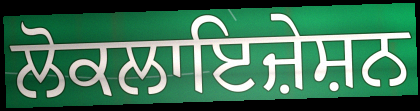
ਲੋਕਲਾਇਜ਼ੇਸ਼ਨ